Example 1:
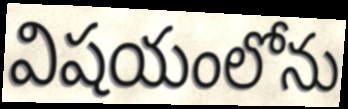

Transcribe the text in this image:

విషయంలోను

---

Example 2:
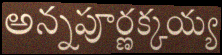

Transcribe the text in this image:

అన్నపూర్ణక్కయ్య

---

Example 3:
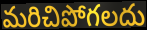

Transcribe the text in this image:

మరిచిపోగలదు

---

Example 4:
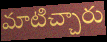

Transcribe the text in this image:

మాటిచ్చారు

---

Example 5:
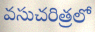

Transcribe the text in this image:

వసుచరిత్రలో